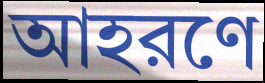
আহরণে